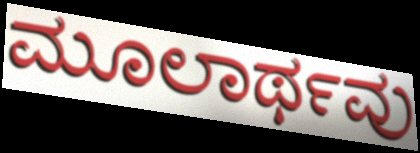
ಮೂಲಾರ್ಥವು